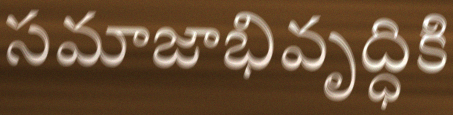
సమాజాభివృద్ధికి